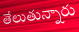
తేలుతున్నారు